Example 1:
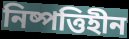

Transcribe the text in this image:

নিষ্পত্তিহীন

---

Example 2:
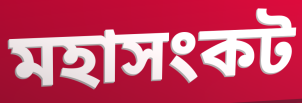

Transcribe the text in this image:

মহাসংকট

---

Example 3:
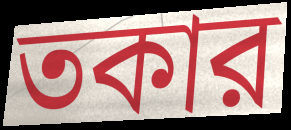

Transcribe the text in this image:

তকার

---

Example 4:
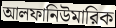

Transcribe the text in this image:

আলফানিউমারিক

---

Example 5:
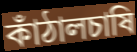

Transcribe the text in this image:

কাঁঠালচাষি